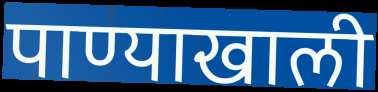
पाण्याखाली